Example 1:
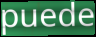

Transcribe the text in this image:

puede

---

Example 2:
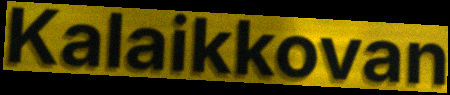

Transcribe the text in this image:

Kalaikkovan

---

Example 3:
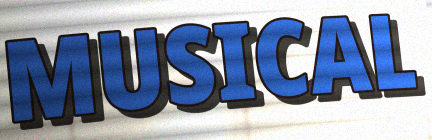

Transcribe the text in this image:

MUSICAL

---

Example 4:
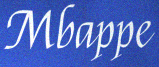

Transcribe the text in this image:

Mbappe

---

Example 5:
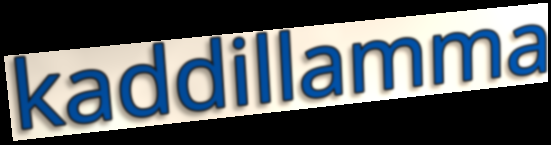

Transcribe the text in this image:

kaddillamma